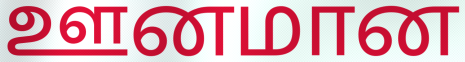
ஊனமான